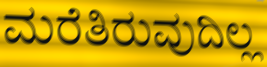
ಮರೆತಿರುವುದಿಲ್ಲ